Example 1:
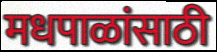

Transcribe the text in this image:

मधपाळांसाठी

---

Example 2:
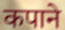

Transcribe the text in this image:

कपाने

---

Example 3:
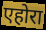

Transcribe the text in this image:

एहोरा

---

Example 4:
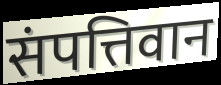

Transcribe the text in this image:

संपत्तिवान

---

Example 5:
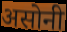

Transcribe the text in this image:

असोनी